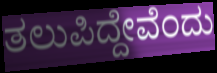
ತಲುಪಿದ್ದೇವೆಂದು